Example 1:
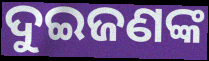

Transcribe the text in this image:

ଦୁଇଜଣଙ୍କ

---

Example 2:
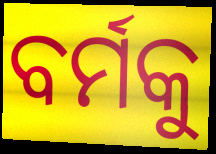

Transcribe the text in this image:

ବର୍ମକୁ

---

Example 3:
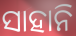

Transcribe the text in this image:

ସାହାନି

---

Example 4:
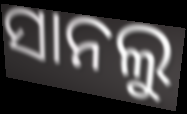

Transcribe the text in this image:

ସାନଲୁ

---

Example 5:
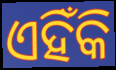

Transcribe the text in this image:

ଏହିଁକି